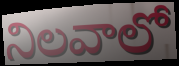
నిలవాలో